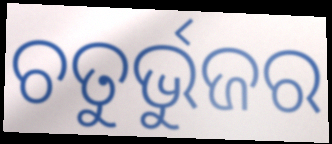
ଚତୁର୍ଭୁଜର